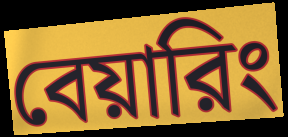
বেয়ারিং